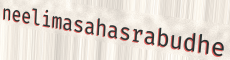
neelimasahasrabudhe